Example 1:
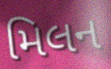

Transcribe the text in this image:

મિલન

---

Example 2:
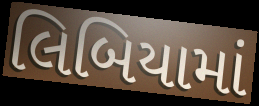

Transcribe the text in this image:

લિબિયામાં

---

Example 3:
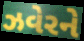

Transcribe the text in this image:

ઝવેરને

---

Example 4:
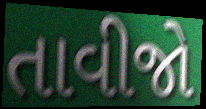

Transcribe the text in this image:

તાવીજો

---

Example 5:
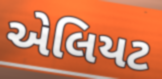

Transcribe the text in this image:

એલિયટ